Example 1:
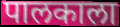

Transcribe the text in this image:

पालकाला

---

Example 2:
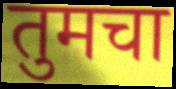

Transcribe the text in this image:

तुमचा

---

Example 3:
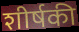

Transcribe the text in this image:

शीर्षकी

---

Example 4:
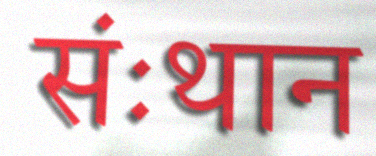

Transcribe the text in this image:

संःथान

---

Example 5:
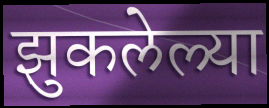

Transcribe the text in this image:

झुकलेल्या